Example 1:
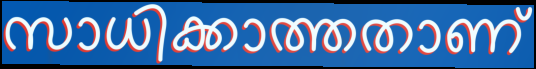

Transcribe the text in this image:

സാധിക്കാത്തതാണ്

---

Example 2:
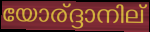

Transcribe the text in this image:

യോര്ദ്ദാനില്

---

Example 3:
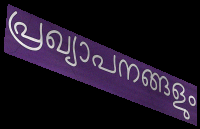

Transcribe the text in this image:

പ്രഖ്യാപനങ്ങളും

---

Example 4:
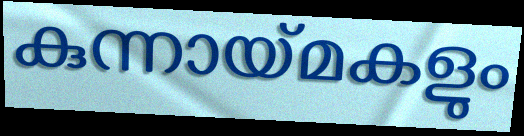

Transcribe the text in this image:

കുന്നായ്മകളും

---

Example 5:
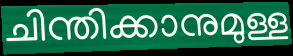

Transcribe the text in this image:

ചിന്തിക്കാനുമുള്ള